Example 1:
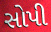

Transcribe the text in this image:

સોપી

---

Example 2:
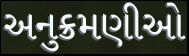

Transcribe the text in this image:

અનુક્રમણીઓ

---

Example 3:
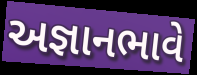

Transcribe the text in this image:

અજ્ઞાનભાવે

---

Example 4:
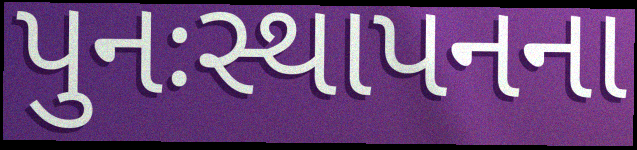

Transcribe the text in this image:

પુનઃસ્થાપનના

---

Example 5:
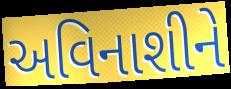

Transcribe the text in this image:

અવિનાશીને